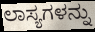
ಲಾಸ್ಯಗಳನ್ನು